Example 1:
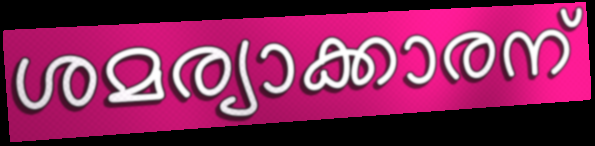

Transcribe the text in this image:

ശമര്യാക്കാരന്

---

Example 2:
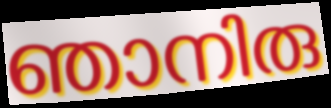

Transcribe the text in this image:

ഞാനിരു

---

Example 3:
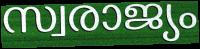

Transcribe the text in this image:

സ്വരാജ്യം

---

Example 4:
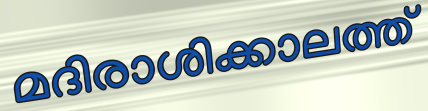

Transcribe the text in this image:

മദിരാശിക്കാലത്ത്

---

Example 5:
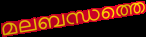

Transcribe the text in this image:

മലബന്ധത്തെ